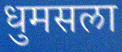
धुमसला